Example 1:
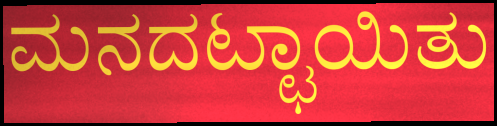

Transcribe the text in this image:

ಮನದಟ್ಟಾಯಿತು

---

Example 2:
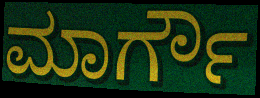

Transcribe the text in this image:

ಮಾರ್ಗೌ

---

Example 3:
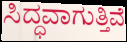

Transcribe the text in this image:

ಸಿದ್ಧವಾಗುತ್ತಿವೆ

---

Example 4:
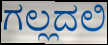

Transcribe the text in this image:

ಗಲ್ಲದಲಿ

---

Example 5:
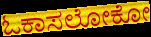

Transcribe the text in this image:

ಓಕಾಸಲೋಕೋ